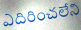
ఎదిరించలేని